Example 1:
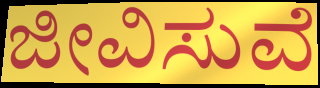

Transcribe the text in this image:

ಜೀವಿಸುವೆ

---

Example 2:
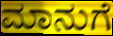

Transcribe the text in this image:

ಮಾನುಗೆ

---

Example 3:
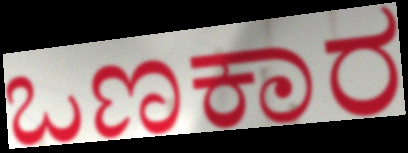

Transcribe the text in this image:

ಒಣಕಾರ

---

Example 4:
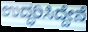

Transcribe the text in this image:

ಉದ್ಧರಿಸಿದ್ದೇನೆ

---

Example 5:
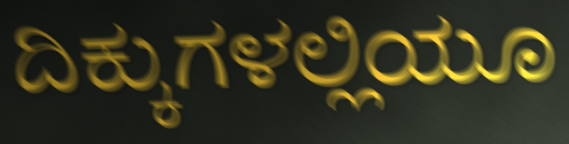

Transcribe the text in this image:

ದಿಕ್ಕುಗಳಲ್ಲಿಯೂ